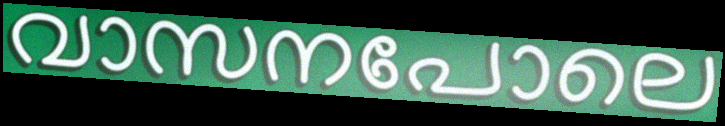
വാസനപോലെ